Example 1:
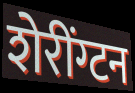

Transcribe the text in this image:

शेरींग्टन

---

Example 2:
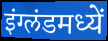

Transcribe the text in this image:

इंग्लंडमध्यें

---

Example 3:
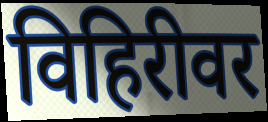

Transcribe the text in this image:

विहिरीवर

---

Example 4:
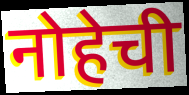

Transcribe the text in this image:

नोहेची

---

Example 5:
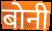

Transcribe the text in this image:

बोनी